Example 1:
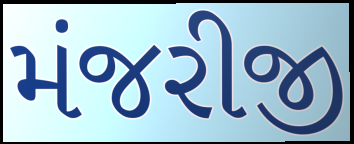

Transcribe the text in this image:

મંજરીજી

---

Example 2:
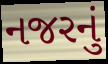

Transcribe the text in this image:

નજરનું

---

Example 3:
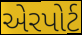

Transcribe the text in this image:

એરપોર્ટ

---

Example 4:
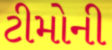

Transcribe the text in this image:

ટીમોની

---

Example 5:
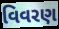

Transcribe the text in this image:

વિવરણ